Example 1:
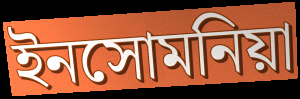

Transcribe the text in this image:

ইনসোমনিয়া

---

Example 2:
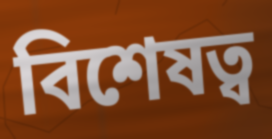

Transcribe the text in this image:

বিশেষত্ব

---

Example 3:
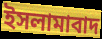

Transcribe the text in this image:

ইসলামাবাদ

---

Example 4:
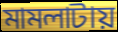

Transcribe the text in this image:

মামলাটায়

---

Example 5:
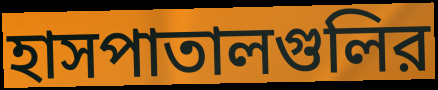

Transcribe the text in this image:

হাসপাতালগুলির